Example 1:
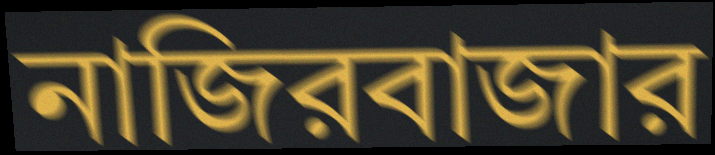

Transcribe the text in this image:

নাজিরবাজার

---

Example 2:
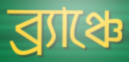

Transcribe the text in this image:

ব্র্যাঞ্চে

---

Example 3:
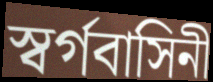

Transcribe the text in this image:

স্বর্গবাসিনী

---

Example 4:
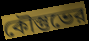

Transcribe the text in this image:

কৌস্তুভের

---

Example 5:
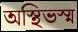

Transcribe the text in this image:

অস্থিভস্ম